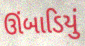
ઊંબાડિયું